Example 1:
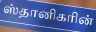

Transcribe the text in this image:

ஸ்தானிகரின்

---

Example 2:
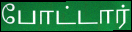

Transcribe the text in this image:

போட்டார்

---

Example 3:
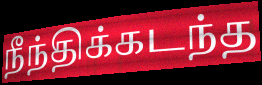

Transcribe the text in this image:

நீந்திக்கடந்த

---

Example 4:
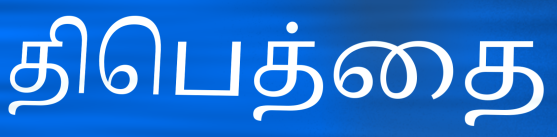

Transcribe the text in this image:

திபெத்தை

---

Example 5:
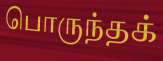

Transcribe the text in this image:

பொருந்தக்